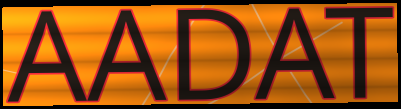
AADAT